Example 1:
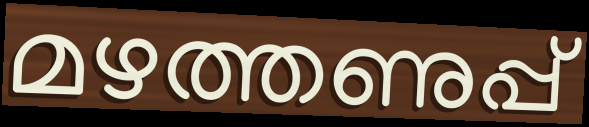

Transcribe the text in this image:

മഴത്തണുപ്പ്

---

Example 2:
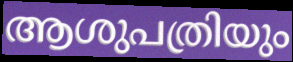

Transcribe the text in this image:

ആശുപത്രിയും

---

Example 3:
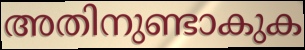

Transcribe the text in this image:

അതിനുണ്ടാകുക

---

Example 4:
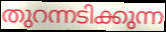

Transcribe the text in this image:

തുറന്നടിക്കുന്ന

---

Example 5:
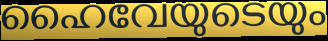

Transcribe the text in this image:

ഹൈവേയുടെയും